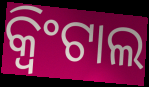
କ୍ୱିଂଟାଲ